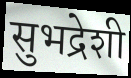
सुभद्रेशी